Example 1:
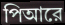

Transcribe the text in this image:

পিআরে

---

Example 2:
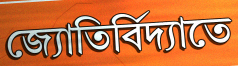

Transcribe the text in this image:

জ্যোতির্বিদ্যাতে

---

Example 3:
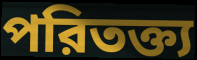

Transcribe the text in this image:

পরিতক্ত্য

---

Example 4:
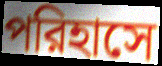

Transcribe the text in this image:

পরিহাসে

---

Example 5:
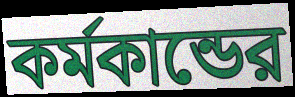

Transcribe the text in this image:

কর্মকান্ডের